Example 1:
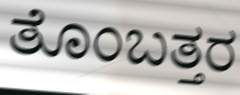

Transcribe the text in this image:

ತೊಂಬತ್ತರ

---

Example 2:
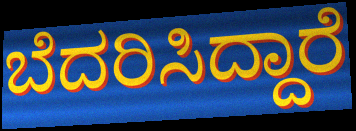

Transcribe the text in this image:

ಬೆದರಿಸಿದ್ದಾರೆ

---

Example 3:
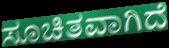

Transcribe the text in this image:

ಸೂಚಿತವಾಗಿದೆ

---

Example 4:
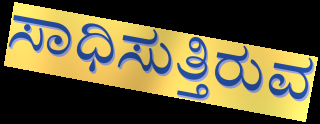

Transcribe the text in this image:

ಸಾಧಿಸುತ್ತಿರುವ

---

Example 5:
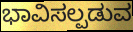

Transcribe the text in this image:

ಭಾವಿಸಲ್ಪಡುವ